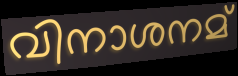
വിനാശനമ്